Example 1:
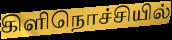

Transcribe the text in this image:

கிளிநொச்சியில்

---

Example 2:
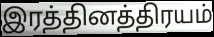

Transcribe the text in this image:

இரத்தினத்திரயம்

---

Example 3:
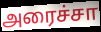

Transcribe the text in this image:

அரைச்சா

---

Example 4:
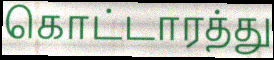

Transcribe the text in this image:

கொட்டாரத்து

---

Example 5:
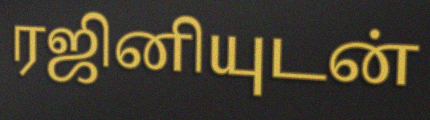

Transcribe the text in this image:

ரஜினியுடன்